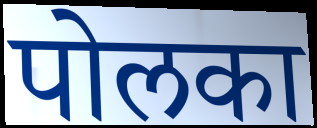
पोलका